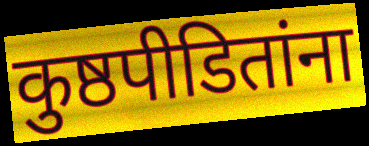
कुष्ठपीडितांना